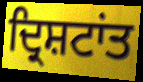
ਦ੍ਰਿਸ਼ਟਾਂਤ